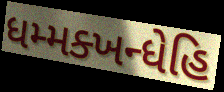
ધમ્મક્ખન્ધેહિ